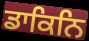
ਡਾਕਿਨਿ